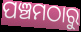
ପଞ୍ଚମଠାରୁ